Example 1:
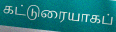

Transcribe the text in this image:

கட்டுரையாகப்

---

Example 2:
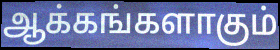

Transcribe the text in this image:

ஆக்கங்களாகும்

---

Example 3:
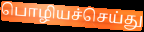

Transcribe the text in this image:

பொழியச்செய்து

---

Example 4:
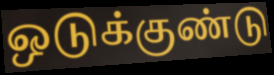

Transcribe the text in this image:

ஒடுக்குண்டு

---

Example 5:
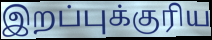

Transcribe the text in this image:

இறப்புக்குரிய